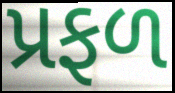
પ્રફળ